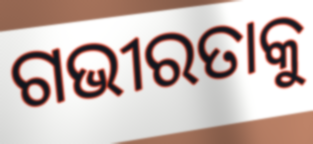
ଗଭୀରତାକୁ